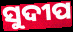
ସୁଦୀପ